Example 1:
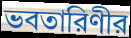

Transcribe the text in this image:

ভবতারিণীর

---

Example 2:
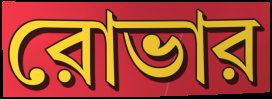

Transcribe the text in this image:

রোভার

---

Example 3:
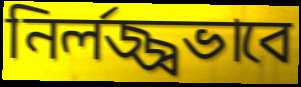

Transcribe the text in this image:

নির্লজ্জ্বভাবে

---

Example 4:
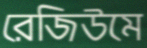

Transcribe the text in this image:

রেজিউমে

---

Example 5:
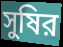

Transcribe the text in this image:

সুষির